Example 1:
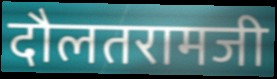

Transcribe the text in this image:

दौलतरामजी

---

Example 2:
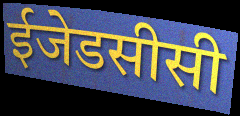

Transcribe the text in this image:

ईजेडसीसी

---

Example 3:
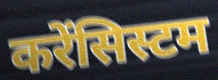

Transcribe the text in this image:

करेंसिस्टम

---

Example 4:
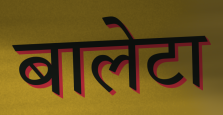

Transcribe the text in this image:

बालेटा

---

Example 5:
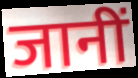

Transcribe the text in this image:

जानीं